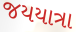
જયયાત્રા